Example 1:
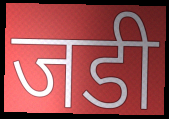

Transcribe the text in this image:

जडी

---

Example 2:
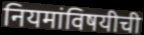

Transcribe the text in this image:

नियमांविषयीची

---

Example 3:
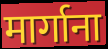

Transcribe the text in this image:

मार्गाना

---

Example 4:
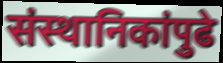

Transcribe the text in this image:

संस्थानिकांपुढे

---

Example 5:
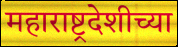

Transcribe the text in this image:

महाराष्ट्रदेशीच्या